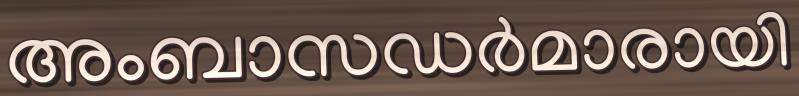
അംബാസഡർമാരായി